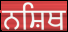
ਨਸ਼ਿਥ